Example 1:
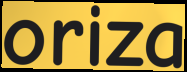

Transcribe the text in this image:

oriza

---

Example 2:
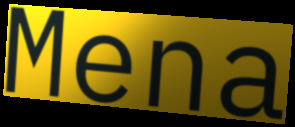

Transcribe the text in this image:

Mena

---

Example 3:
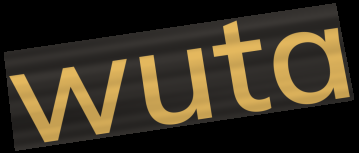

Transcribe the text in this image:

wuta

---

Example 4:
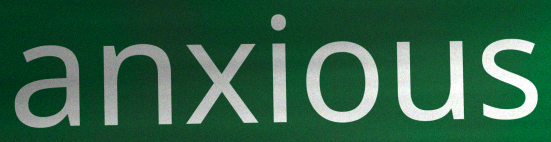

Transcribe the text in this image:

anxious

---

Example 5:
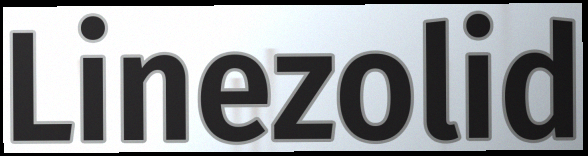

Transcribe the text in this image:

Linezolid